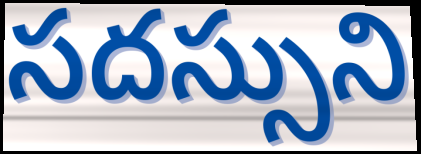
సదస్సుని